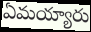
ఏమయ్యారు